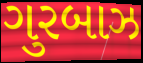
ગુરબાઝ